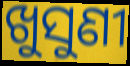
ଖୁସୁଣୀ